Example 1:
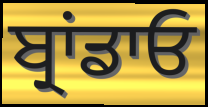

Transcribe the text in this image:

ਬ੍ਰਾਂਡਾਓ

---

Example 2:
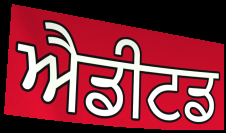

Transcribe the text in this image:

ਐਡੀਟਡ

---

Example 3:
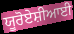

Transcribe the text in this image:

ਯੂਰੋਏਸ਼ੀਆਈ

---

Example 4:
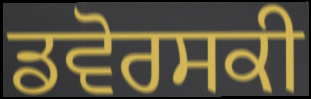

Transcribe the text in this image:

ਡਵੋਰਸਕੀ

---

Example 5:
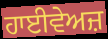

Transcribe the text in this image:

ਹਾਈਵੇਅਜ਼